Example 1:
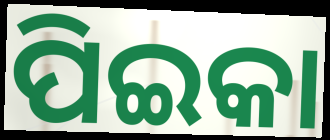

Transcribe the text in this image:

ପିଇକା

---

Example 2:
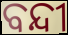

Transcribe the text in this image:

ବନ୍ଦୀ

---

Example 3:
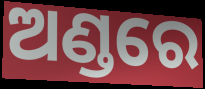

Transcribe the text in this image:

ଅଣ୍ଡରେ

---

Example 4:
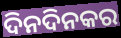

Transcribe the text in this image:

ଦିନଦିନକର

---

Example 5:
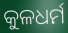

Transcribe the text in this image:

କୁଳଧର୍ମ